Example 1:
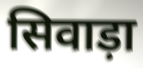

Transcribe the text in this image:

सिवाड़ा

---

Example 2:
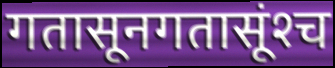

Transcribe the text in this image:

गतासूनगतासूंश्च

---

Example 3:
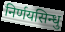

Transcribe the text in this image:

निर्णयसिन्धु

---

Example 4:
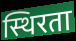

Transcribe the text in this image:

स्थिरता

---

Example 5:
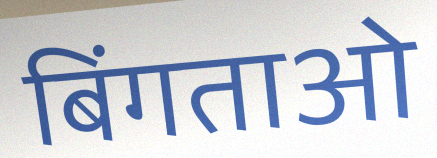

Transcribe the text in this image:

बिंगताओ